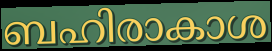
ബഹിരാകാശ